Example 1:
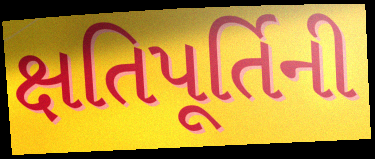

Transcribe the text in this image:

ક્ષતિપૂર્તિની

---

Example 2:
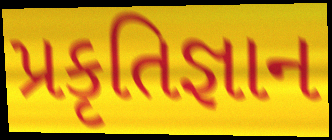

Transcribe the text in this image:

પ્રકૃતિજ્ઞાન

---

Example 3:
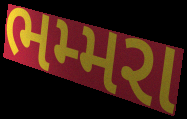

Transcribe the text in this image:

ભમ્મરા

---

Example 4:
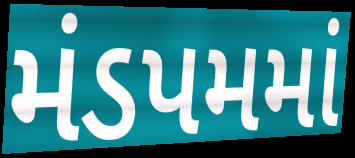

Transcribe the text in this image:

મંડપમમાં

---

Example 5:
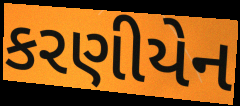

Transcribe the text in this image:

કરણીયેન